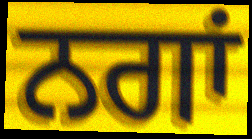
ਨਗਾਂ